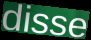
disse